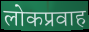
लोकप्रवाह